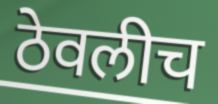
ठेवलीच